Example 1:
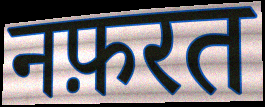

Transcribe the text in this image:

नफ़रत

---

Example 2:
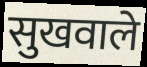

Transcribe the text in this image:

सुखवाले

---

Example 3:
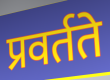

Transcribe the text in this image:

प्रवर्तते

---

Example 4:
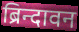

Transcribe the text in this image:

ब्रिन्दावन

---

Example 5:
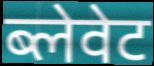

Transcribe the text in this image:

ब्लेवेट